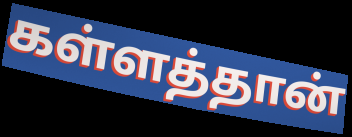
கள்ளத்தான்